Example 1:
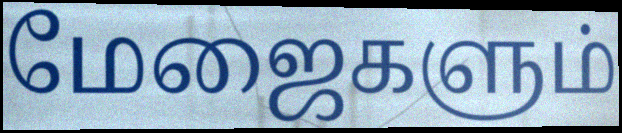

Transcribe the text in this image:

மேஜைகளும்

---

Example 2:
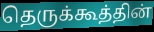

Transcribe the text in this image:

தெருக்கூத்தின்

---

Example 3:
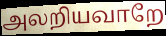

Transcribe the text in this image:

அலறியவாறே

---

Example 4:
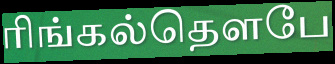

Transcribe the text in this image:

ரிங்கல்தௌபே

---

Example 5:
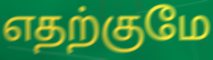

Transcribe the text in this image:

எதற்குமே